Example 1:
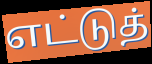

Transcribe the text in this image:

எட்டுத்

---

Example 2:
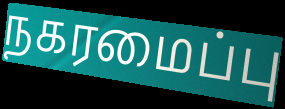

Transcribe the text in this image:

நகரமைப்பு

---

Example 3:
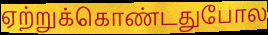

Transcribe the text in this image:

ஏற்றுக்கொண்டதுபோல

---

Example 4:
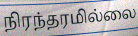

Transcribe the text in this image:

நிரந்தரமில்லை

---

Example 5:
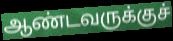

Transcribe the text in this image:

ஆண்டவருக்குச்